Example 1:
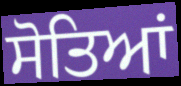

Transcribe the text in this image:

ਸੋਤਿਆਂ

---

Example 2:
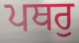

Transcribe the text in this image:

ਪਥਰੁ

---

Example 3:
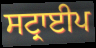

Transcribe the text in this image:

ਸਟ੍ਰਾਈਪ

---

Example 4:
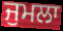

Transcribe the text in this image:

ਜੁਮਲਾ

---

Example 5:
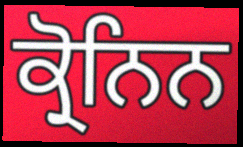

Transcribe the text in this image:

ਕ੍ਰੋਨਿਨ